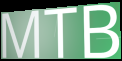
MTB